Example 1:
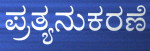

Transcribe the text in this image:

ಪ್ರತ್ಯನುಕರಣೆ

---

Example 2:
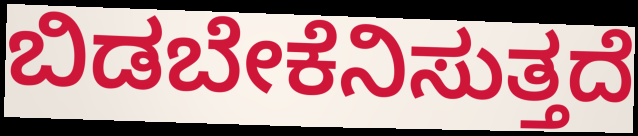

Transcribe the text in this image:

ಬಿಡಬೇಕೆನಿಸುತ್ತದೆ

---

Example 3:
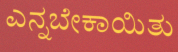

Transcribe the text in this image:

ಎನ್ನಬೇಕಾಯಿತು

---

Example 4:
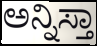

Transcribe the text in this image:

ಅನ್ನಿಸ್ತಾ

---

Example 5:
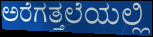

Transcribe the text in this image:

ಅರೆಗತ್ತಲೆಯಲ್ಲಿ